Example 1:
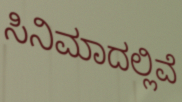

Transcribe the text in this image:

ಸಿನಿಮಾದಲ್ಲಿವೆ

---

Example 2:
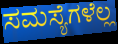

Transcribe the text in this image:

ಸಮಸ್ಯೆಗಳೆಲ್ಲ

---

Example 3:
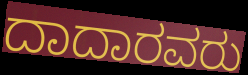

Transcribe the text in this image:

ದಾದಾರವರು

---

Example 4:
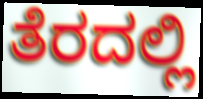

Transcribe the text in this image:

ತೆರದಲ್ಲಿ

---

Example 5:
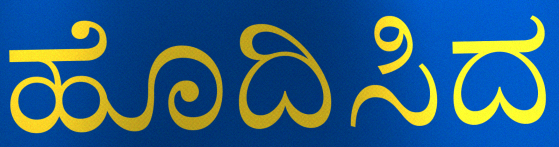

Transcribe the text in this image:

ಹೊದಿಸಿದ